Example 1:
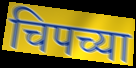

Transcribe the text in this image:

चिपच्या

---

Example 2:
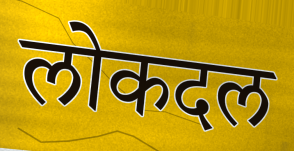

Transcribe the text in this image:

लोकदल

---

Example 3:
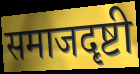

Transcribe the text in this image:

समाजदृष्टी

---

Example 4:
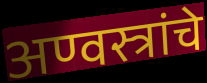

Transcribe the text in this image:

अण्वस्त्रांचे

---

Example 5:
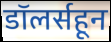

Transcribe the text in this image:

डॉलर्सहून